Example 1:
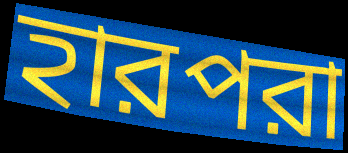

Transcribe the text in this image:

হারপরা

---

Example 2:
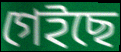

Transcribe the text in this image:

গেইছে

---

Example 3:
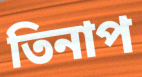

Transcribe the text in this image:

তিনাপ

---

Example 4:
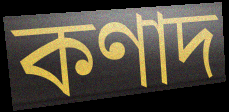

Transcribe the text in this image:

কণাদ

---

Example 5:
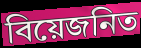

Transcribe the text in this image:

বিয়েজনিত